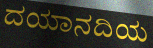
ದಯಾನದಿಯ